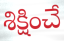
శిక్షించే